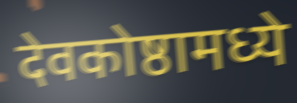
देवकोष्ठामध्ये